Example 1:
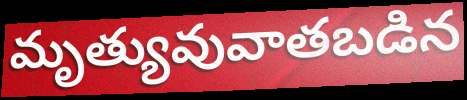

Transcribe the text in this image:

మృత్యువువాతబడిన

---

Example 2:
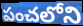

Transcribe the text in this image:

పంచలోని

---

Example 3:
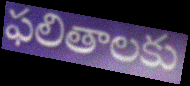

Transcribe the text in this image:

ఫలితాలకు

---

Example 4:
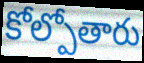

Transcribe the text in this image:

కోల్పోతారు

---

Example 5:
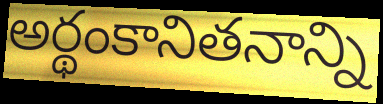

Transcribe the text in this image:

అర్థంకానితనాన్ని